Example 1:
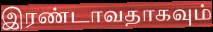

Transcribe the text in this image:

இரண்டாவதாகவும்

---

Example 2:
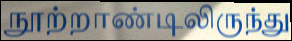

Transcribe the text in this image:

நூற்றாண்டிலிருந்து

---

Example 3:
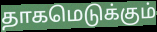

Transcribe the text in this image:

தாகமெடுக்கும்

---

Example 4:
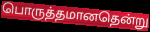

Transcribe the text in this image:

பொருத்தமானதென்று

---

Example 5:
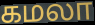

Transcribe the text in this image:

கமலா